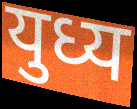
युध्य